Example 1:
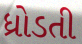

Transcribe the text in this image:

ધ્રોડતી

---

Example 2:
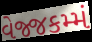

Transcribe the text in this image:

વેજ્જકમ્મં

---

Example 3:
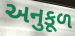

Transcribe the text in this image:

અનુકૂળ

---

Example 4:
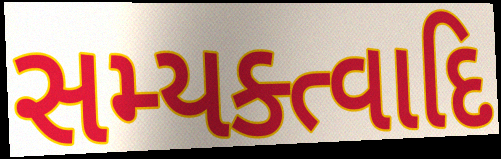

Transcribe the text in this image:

સમ્યક્ત્વાદિ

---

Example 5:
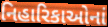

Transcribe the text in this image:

નિહારિકાઓનાં